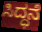
ಸಿದ್ಧನೆ